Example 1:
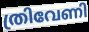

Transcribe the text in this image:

ത്രിവേണി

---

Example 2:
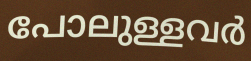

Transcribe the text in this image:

പോലുള്ളവർ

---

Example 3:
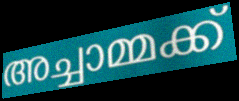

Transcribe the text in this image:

അച്ചാമ്മക്ക്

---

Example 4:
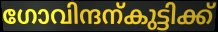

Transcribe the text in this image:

ഗോവിന്ദന്കുട്ടിക്ക്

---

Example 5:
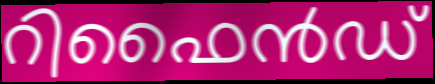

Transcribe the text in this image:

റിഫൈൻഡ്